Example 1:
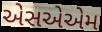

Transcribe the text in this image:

એસએએમ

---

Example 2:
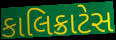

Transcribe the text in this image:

કાલિક્રાટેસ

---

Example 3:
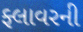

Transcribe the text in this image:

ફ્લાવરની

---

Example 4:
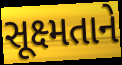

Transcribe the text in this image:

સૂક્ષ્મતાને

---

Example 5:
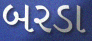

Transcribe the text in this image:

બરડા